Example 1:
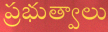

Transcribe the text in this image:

ప్రభుత్వాలు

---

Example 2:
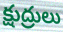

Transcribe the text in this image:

క్షుద్రులు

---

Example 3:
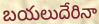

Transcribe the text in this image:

బయలుదేరినా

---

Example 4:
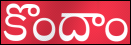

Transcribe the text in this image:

కొందాం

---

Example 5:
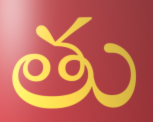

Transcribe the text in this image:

తు